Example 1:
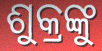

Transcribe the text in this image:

ଶୁକ୍ରଙ୍କୁ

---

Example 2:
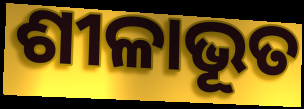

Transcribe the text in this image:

ଶୀଳାଭୂତ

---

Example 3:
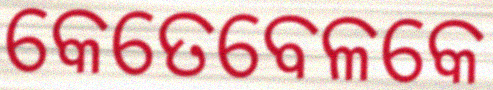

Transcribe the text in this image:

କେତେବେଳକେ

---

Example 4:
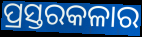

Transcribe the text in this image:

ପ୍ରସ୍ତରକଳାର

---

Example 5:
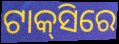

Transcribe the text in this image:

ଟାକ୍‌ସିରେ